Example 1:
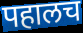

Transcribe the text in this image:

पहालच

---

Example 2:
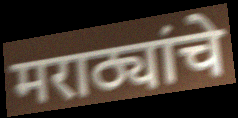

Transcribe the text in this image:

मराठ्यांचे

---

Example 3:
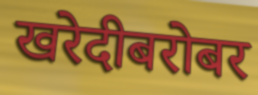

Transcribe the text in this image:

खरेदीबरोबर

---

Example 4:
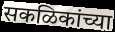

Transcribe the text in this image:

सकळिकांच्या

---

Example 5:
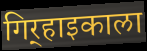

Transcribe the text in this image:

गिर्हाइकाला